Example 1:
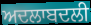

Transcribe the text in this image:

ਅਦਲਾਬਦਲੀ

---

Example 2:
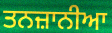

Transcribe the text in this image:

ਤਨਜ਼ਾਨੀਆ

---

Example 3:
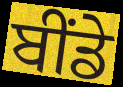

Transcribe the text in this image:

ਬੀਂਡੇ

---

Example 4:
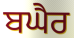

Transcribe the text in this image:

ਬਘੈਰ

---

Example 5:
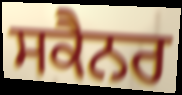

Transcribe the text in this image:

ਸਕੈਨਰ